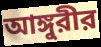
আঙ্গুরীর